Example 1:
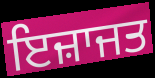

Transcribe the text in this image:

ਇਜ਼ਾਜਤ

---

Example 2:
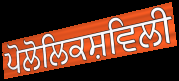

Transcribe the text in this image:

ਪੋਲੋਲਿਕਸ਼ਵਿਲੀ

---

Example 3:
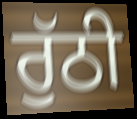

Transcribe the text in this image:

ਰੁੱਠੀ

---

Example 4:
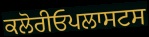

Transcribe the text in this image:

ਕਲੋਰੀਓਪਲਾਸਟਸ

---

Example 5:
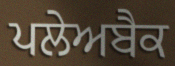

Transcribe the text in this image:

ਪਲੇਅਬੈਕ